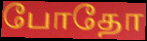
போதோ